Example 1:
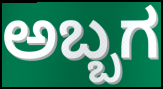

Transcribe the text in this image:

ಅಬ್ಬಗ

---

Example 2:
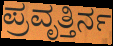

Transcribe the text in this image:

ಪ್ರವೃತ್ತಿರ್ನ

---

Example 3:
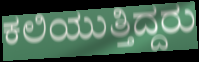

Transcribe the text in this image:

ಕಲಿಯುತ್ತಿದ್ದರು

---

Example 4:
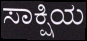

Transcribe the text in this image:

ಸಾಕ್ಷಿಯ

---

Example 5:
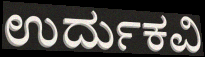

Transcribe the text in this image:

ಉರ್ದುಕವಿ